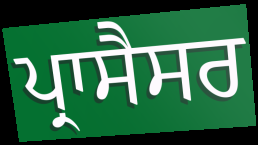
ਪ੍ਰਾਸੈਸਰ